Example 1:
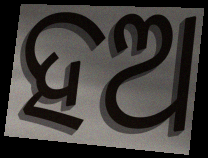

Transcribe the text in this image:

ହଅ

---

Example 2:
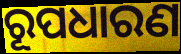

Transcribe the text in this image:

ରୂପଧାରଣ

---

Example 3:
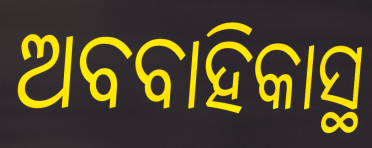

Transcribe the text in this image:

ଅବବାହିକାସ୍ଥ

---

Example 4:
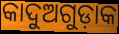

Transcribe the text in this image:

କାଦୁଅଗୁଡ଼ାକ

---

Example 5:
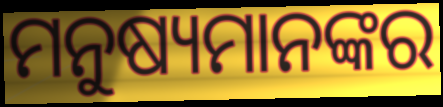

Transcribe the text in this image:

ମନୁଷ୍ୟମାନଙ୍କର